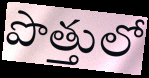
పొత్తులో